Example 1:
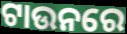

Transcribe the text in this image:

ଟାଉନରେ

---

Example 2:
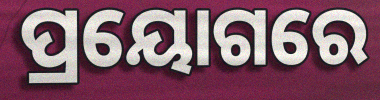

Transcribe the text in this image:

ପ୍ରୟୋଗରେ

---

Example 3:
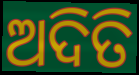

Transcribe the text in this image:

ଅଦିତି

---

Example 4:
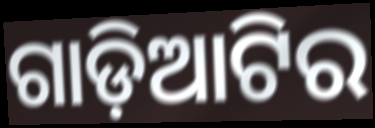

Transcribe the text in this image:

ଗାଡ଼ିଆଟିର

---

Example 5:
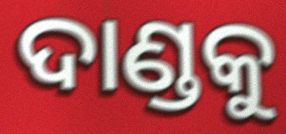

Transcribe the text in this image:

ଦାଣ୍ଡକୁ